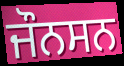
ਜੌਨਸਨ